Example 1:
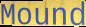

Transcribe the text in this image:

Mound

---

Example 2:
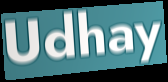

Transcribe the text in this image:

Udhay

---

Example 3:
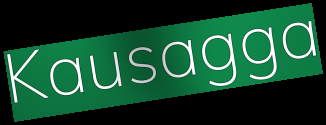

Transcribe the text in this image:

Kausagga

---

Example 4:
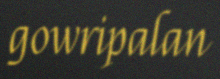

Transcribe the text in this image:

gowripalan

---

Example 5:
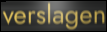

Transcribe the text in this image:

verslagen